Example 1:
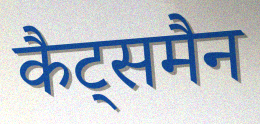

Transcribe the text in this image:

कैट्समैन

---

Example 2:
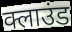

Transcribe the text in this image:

क्लाउंड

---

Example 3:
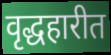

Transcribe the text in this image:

वृद्धहारीत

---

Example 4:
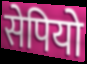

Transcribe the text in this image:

सेपियो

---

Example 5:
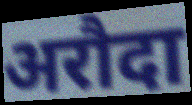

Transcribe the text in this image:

अरौदा